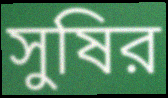
সুষির